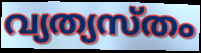
വ്യത്യസ്തം